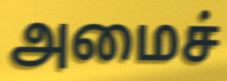
அமைச்